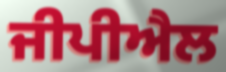
ਜੀਪੀਐਲ